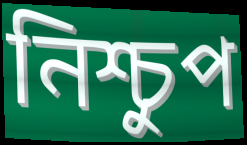
নিশ্চুপ